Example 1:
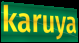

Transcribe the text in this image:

karuya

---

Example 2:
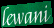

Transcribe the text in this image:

lewani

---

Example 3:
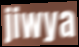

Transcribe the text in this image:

jiwya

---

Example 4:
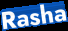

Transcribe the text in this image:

Rasha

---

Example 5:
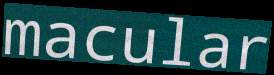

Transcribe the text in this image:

macular